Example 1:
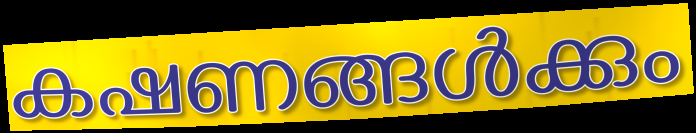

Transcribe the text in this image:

കഷണങ്ങൾക്കും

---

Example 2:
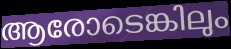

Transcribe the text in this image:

ആരോടെങ്കിലും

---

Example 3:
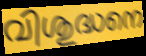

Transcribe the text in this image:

വിശുദ്ധനെ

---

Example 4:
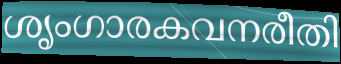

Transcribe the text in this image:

ശൃംഗാരകവനരീതി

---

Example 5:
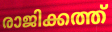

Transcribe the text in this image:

രാജിക്കത്ത്